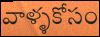
వాళ్ళకోసం